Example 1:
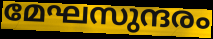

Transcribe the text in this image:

മേഘസുന്ദരം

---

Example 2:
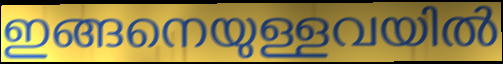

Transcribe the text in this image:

ഇങ്ങനെയുള്ളവയിൽ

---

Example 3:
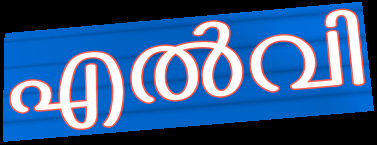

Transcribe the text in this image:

എൽവി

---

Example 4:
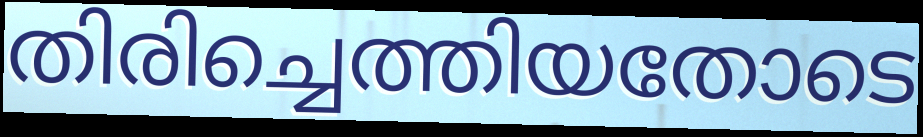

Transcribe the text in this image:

തിരിച്ചെത്തിയതോടെ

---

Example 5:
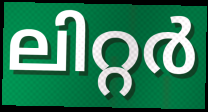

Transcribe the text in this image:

ലിറ്റർ